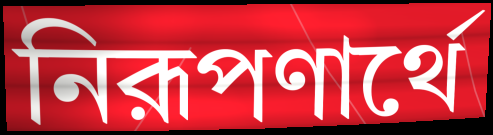
নিরূপণার্থে